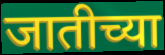
जातीच्या